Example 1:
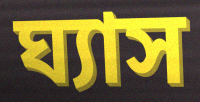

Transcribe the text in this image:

ঘ্যাস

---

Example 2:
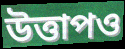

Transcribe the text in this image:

উত্তাপও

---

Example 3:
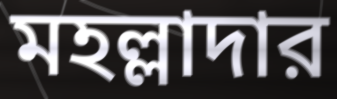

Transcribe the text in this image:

মহল্লাদার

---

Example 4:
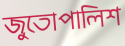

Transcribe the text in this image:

জুতোপালিশ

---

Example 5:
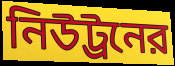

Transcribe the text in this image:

নিউট্রনের